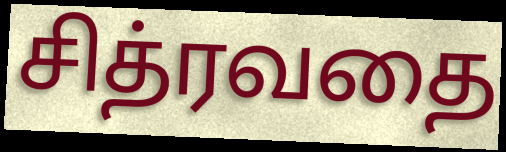
சித்ரவதை